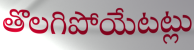
తొలగిపోయేటట్లు